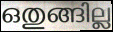
ഒതുങ്ങില്ല